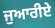
ਜੁਆਰੀਏ